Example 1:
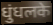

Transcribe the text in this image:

धुंधलके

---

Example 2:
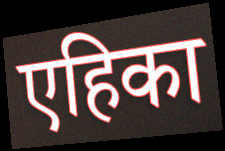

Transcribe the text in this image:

एहिका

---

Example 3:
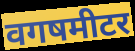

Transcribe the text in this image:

वगषमीटर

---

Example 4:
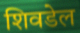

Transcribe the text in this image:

शिवडेल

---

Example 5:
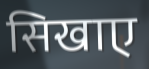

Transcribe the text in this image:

सिखाए